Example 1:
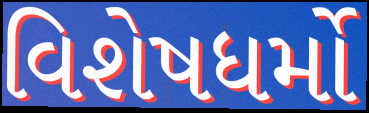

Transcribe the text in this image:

વિશેષધર્મો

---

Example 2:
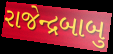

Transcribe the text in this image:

રાજેન્દ્રબાબુ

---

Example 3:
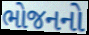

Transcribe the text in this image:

ભોજનનો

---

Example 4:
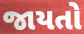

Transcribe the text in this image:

જાયતો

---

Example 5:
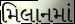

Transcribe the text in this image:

મિલાનમાં